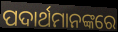
ପଦାର୍ଥମାନଙ୍କରେ